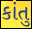
કાંતુ